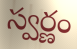
స్వర్ణం